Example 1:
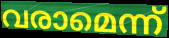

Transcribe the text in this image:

വരാമെന്ന്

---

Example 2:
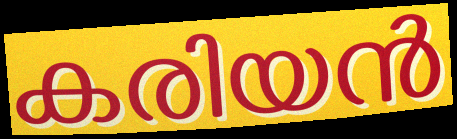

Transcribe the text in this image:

കരിയൻ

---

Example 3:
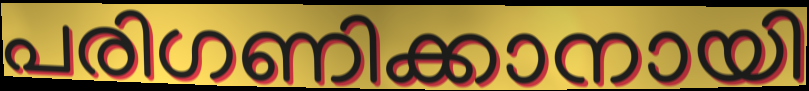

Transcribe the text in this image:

പരിഗണിക്കാനായി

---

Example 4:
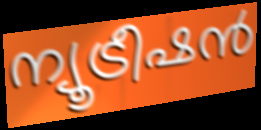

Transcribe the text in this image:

ന്യൂട്രീഷൻ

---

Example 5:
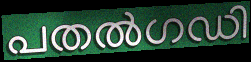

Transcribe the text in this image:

പതൽഗഡി